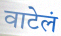
वाटेलं